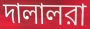
দালালরা